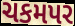
ચકમપર